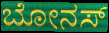
ಬೋನಸ್